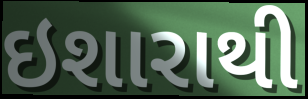
ઇશારાથી